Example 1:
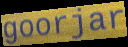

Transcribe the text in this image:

goorjar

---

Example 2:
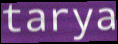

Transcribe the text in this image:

tarya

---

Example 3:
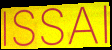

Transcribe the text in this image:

ISSAI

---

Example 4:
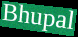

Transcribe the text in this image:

Bhupal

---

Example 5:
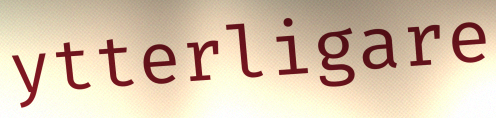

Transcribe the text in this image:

ytterligare